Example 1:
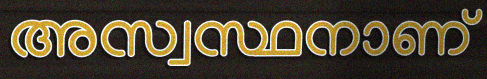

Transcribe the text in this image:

അസ്വസ്ഥനാണ്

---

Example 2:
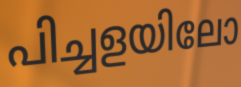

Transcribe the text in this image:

പിച്ചളയിലോ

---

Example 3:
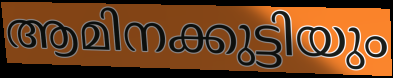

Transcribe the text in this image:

ആമിനക്കുട്ടിയും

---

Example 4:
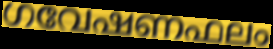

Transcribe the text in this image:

ഗവേഷണഫലം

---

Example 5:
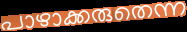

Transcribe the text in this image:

പാഴാക്കരുതെന്ന